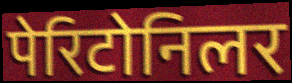
पेरिटोनिलर